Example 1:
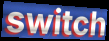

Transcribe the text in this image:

switch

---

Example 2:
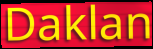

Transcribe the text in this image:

Daklan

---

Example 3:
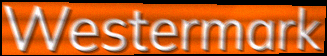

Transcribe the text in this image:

Westermark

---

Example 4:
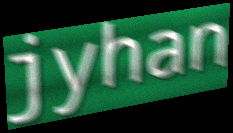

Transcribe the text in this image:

jyhan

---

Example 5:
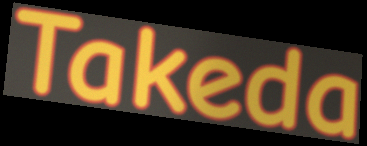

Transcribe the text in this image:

Takeda